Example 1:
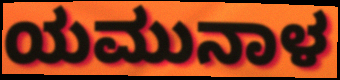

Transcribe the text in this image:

ಯಮುನಾಳ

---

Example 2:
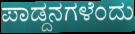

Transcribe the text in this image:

ಪಾಡ್ದನಗಳೆಂದು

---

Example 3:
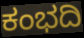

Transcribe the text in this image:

ಕಂಭದಿ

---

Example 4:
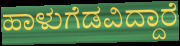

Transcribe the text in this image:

ಹಾಳುಗೆಡವಿದ್ದಾರೆ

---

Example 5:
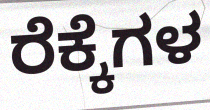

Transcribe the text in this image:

ರೆಕ್ಕೆಗಳ